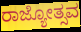
ರಾಜ್ಯೋತ್ಸವ